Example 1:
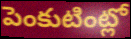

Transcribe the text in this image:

పెంకుటింట్లో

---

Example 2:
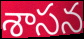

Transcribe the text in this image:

శాసన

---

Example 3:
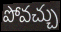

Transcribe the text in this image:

పోవచ్చు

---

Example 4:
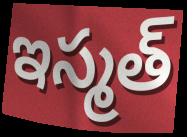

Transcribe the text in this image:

ఇస్మత్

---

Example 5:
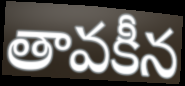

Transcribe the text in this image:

తావకీన